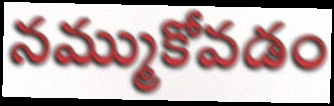
నమ్ముకోవడం